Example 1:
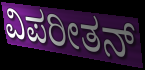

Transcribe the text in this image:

ವಿಪರೀತನ್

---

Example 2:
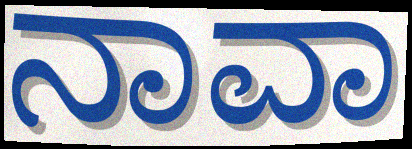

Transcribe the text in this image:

ನಾವಾ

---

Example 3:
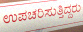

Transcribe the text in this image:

ಉಪಚರಿಸುತ್ತಿದ್ದರು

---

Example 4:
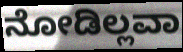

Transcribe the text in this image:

ನೋಡಿಲ್ಲವಾ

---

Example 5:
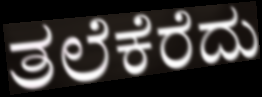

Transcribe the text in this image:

ತಲೆಕೆರೆದು